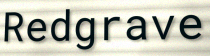
Redgrave